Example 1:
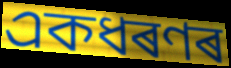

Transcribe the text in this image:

একধৰণৰ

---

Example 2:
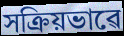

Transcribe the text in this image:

সক্ৰিয়ভাৱে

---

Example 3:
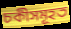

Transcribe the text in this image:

চকীসমূহত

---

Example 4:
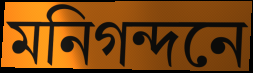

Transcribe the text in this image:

মনিগন্দনে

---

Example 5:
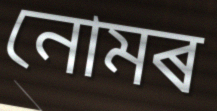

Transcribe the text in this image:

নোমৰ